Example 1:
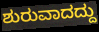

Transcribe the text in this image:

ಶುರುವಾದದ್ದು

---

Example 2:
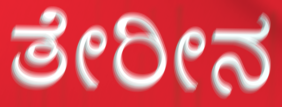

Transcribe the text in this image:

ತೇರೀನ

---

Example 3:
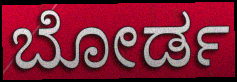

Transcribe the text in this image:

ಬೋರ್ಡ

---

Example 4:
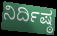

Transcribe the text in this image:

ನಿರ್ದಿಷ್ಠ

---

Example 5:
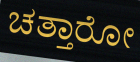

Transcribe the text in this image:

ಚತ್ತಾರೋ